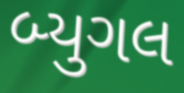
બ્યુગલ